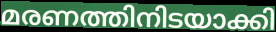
മരണത്തിനിടയാക്കി